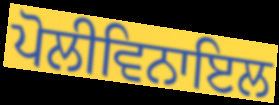
ਪੋਲੀਵਿਨਾਇਲ